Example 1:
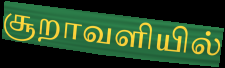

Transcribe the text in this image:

சூறாவளியில்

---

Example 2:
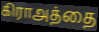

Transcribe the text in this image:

கிராஅத்தை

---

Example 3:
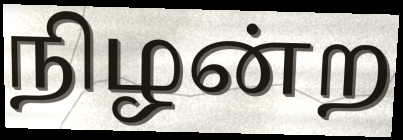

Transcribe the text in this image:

நிழன்ற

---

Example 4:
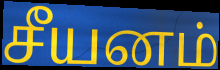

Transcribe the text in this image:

சீயனம்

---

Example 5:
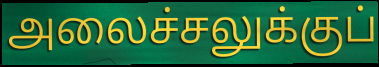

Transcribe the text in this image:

அலைச்சலுக்குப்